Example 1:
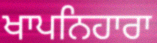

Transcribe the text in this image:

ਖਾਪਨਿਹਾਰਾ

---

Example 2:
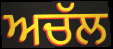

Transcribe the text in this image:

ਅਚੱਲ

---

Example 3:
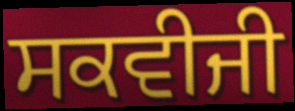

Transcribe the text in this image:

ਸਕਵੀਜੀ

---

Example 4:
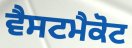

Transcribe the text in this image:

ਵੈਸਟਮੈਕੋਟ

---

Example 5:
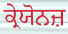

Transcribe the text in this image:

ਕ੍ਰੇਯੋਨਜ਼